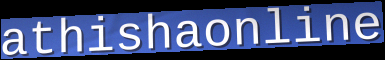
athishaonline